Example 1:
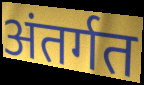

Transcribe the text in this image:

अंतर्गत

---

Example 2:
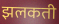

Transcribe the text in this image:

झलकती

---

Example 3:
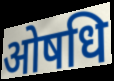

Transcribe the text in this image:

ओषधि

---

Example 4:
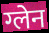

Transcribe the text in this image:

ग्लेन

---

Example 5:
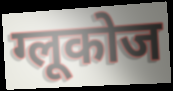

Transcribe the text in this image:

ग्लूकोज